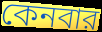
কেনবার